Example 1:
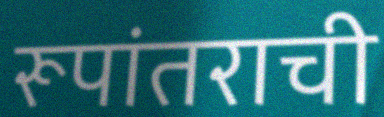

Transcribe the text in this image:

रूपांतराची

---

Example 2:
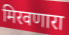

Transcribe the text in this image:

मिरवणारा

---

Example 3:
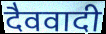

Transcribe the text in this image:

दैववादी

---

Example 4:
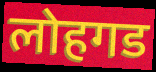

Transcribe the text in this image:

लोहगड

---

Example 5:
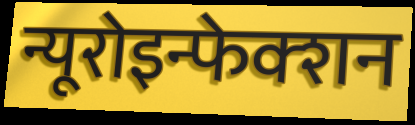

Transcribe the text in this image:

न्यूरोइन्फेक्शन